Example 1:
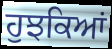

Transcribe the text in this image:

ਹੁਝਕਿਆਂ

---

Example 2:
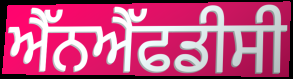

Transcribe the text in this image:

ਐੱਨਐੱਫਡੀਸੀ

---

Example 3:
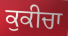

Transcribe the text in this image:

ਕੁਕੀਚਾ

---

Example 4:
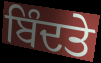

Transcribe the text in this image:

ਬਿੰਦਤੇ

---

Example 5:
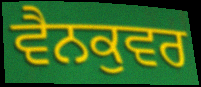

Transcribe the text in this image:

ਵੈਨਕੁਵਰ